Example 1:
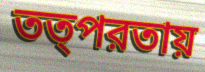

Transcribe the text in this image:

তত্পরতায়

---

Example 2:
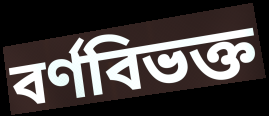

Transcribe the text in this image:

বর্ণবিভক্ত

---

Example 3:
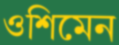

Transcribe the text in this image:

ওশিমেন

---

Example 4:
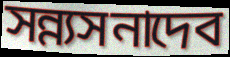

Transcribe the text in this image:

সন্ন্যসনাদেব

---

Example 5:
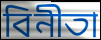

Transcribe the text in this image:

বিনীতা